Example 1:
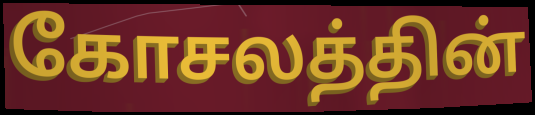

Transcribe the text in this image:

கோசலத்தின்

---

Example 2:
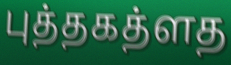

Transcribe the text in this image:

புத்தகத்ளத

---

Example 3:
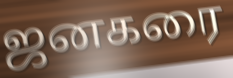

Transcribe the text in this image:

ஜனகரை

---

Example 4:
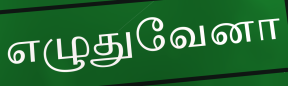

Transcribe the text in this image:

எழுதுவேனா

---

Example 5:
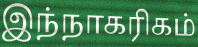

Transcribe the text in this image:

இந்நாகரிகம்